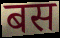
बस